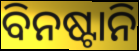
ବିନଷ୍ଟାନି